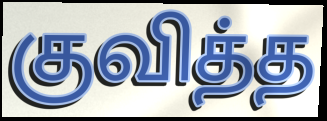
குவித்த